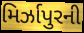
મિર્ઝાપુરની